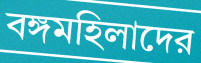
বঙ্গমহিলাদের